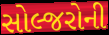
સોલ્જરોની